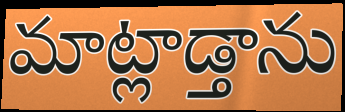
మాట్లాడ్తాను